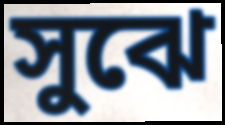
সুঝে